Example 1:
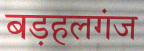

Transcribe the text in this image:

बड़हलगंज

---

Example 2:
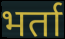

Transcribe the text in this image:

भर्ता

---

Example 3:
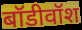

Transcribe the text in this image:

बॉडीवॉश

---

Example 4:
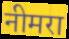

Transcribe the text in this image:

नीमरा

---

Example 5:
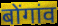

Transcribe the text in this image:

बोंगांव